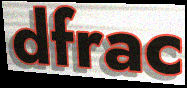
dfrac